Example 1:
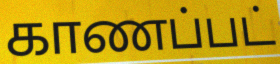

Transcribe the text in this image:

காணப்பட்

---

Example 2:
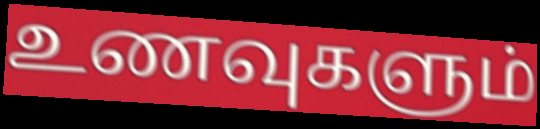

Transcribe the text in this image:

உணவுகளும்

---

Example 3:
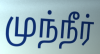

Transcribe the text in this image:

முந்நீர்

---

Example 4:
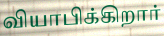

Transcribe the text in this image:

வியாபிக்கிறார்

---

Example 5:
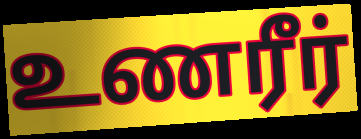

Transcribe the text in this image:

உணரீர்